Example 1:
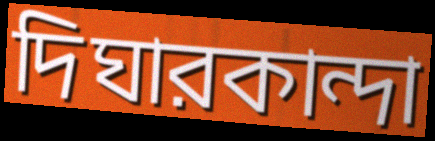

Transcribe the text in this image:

দিঘারকান্দা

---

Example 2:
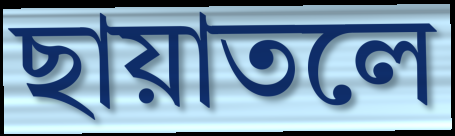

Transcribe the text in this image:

ছায়াতলে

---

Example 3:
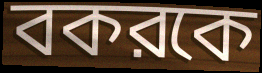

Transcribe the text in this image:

বকরকে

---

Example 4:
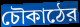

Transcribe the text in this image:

চৌকাঠের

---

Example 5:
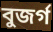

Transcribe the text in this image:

বুজর্গ